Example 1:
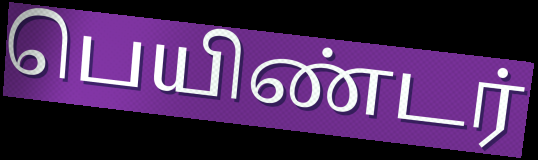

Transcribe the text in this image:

பெயிண்டர்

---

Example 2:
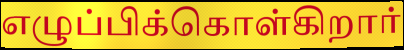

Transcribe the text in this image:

எழுப்பிக்கொள்கிறார்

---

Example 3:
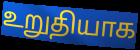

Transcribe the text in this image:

உறுதியாக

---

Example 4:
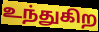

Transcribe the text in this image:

உந்துகிற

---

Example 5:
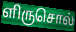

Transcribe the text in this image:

ளிருசொல்